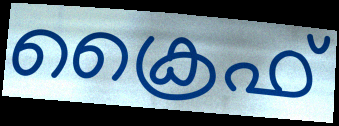
ക്രൈഫ്